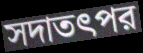
সদাতৎপর